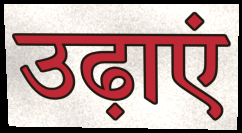
उढ़ाएं